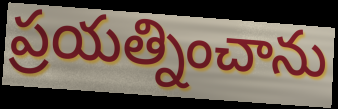
ప్రయత్నించాను